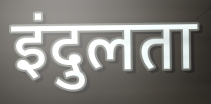
इंदुलता